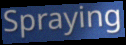
Spraying